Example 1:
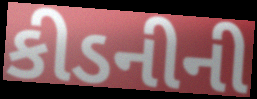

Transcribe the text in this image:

કીડનીની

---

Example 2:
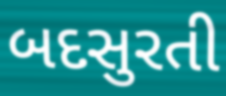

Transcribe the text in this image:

બદસુરતી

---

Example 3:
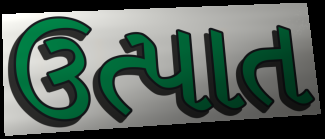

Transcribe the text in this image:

ઉત્પાત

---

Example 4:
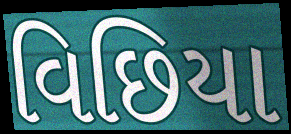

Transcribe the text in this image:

વિછિયા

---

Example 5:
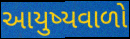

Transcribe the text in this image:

આયુષ્યવાળો